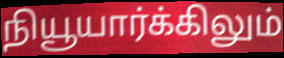
நியூயார்க்கிலும்